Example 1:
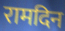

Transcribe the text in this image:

रामदिन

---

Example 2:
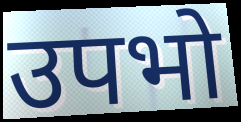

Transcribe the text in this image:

उपभो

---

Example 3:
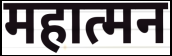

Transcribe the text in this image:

महात्मन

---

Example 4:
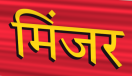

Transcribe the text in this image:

मिंजर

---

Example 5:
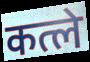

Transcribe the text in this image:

कत्ले